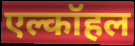
एल्कॉहल